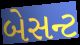
બેસન્ટ